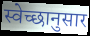
स्वेच्छानुसार